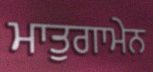
ਮਾਤੁਗਾਮੇਨ